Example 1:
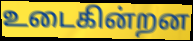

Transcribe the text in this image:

உடைகின்றன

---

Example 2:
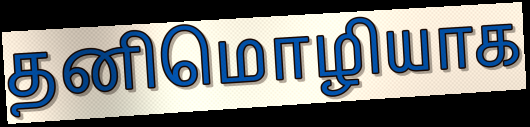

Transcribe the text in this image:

தனிமொழியாக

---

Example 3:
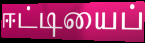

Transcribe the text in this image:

ஈட்டியைப்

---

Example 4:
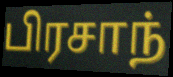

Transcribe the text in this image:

பிரசாந்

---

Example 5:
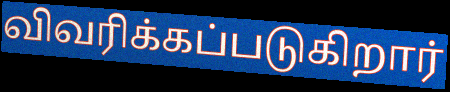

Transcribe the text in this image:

விவரிக்கப்படுகிறார்